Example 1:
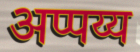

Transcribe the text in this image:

अप्पय्य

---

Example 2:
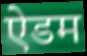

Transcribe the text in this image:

ऐडम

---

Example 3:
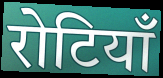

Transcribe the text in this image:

रोटियाँ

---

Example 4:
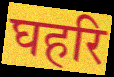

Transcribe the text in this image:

घहरि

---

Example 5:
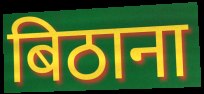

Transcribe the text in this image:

बिठाना